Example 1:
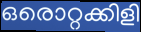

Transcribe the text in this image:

ഒരൊറ്റക്കിളി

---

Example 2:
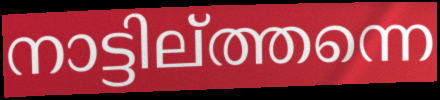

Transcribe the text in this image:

നാട്ടില്ത്തന്നെ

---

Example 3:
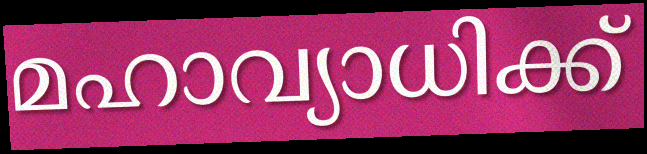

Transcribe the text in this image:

മഹാവ്യാധിക്ക്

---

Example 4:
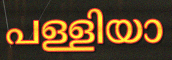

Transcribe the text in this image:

പള്ളിയാ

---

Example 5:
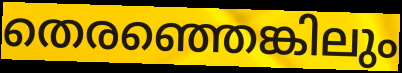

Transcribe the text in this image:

തെരഞ്ഞെങ്കിലും